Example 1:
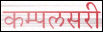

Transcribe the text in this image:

कम्पलसरी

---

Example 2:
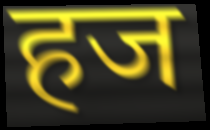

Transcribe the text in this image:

हज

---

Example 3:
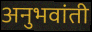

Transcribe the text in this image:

अनुभवांती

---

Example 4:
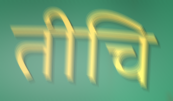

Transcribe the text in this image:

तीचि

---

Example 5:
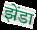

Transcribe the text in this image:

झेंडा